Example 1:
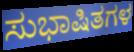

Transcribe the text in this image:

ಸುಭಾಷಿತಗಳ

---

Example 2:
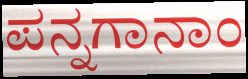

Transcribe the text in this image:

ಪನ್ನಗಾನಾಂ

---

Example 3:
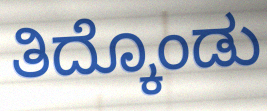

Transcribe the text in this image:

ತಿದ್ಕೊಂಡು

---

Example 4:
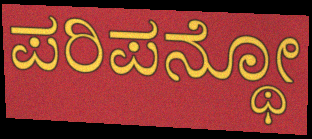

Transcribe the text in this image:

ಪರಿಪನ್ಥೋ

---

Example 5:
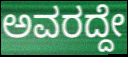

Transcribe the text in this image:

ಅವರದ್ದೇ